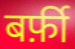
बर्फ़ी